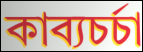
কাব্যচর্চা